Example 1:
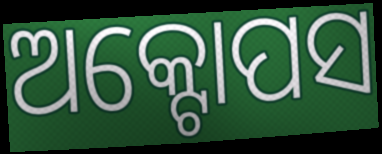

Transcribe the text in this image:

ଅକ୍ଟୋପସ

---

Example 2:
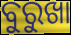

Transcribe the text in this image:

ବୁରୁଖା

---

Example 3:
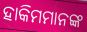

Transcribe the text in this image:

ହାକିମମାନଙ୍କ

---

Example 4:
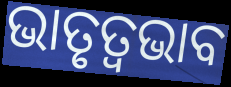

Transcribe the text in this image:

ଭାତୃତ୍ବଭାବ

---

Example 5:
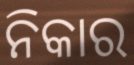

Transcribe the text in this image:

ନିକାର